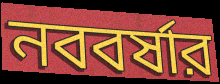
নববর্ষার